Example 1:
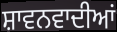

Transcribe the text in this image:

ਸ਼ਾਵਨਵਾਦੀਆਂ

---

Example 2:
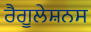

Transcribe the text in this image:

ਰੈਗੂਲੇਸ਼ਨਸ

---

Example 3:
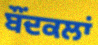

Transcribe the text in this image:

ਬੌਂਦਕਲਾਂ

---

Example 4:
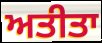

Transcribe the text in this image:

ਅਤੀਤਾ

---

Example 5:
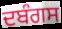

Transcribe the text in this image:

ਦਬੰਗਸ